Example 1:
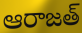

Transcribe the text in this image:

ఆరాజత్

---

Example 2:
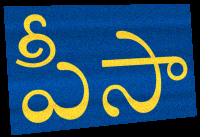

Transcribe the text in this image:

పీసా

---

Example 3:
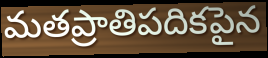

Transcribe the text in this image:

మతప్రాతిపదికపైన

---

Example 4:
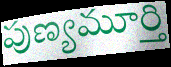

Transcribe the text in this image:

పుణ్యమూర్తి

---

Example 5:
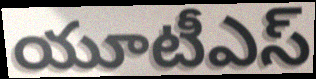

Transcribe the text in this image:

యూటీఎస్